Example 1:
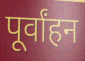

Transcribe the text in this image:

पूर्वांहन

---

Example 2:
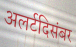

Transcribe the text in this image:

अलर्टदिसंबर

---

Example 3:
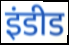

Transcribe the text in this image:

इंडीड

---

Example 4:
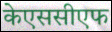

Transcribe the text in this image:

केएससीएफ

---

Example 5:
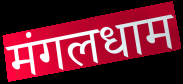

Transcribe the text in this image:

मंगलधाम